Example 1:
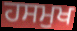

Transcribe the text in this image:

ਹਸਮੁਖ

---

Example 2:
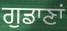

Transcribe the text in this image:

ਗੁਡਾਣਾਂ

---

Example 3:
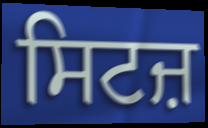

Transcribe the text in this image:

ਸਿਟਜ਼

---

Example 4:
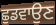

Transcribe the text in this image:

ਛੁਡਵਾਉਣ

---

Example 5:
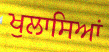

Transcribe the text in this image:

ਖੁਲਾਸਿਆਂ